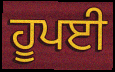
ਹੂਪਈ